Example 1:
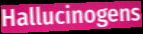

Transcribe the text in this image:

Hallucinogens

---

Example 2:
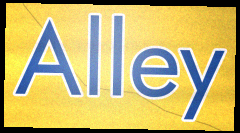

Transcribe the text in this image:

Alley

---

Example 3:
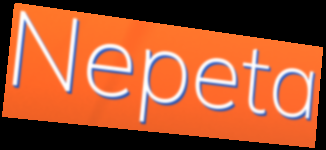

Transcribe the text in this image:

Nepeta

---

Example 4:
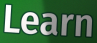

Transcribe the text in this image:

Learn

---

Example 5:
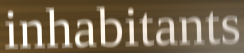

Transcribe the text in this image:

inhabitants